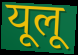
यूलू